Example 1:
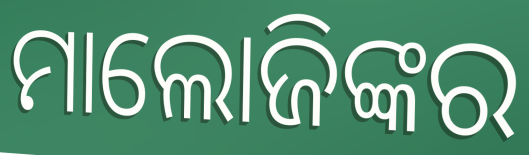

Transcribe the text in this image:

ମାଲୋଜିଙ୍କର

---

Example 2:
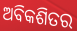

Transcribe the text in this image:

ଅବିକଶିତର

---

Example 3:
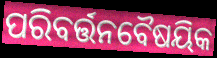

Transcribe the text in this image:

ପରିବର୍ତ୍ତନବୈଷୟିକ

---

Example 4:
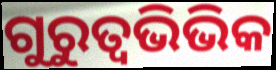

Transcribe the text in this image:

ଗୁରୁତ୍ଵଭିଭିକ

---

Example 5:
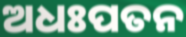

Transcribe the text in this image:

ଅଧଃପତନ